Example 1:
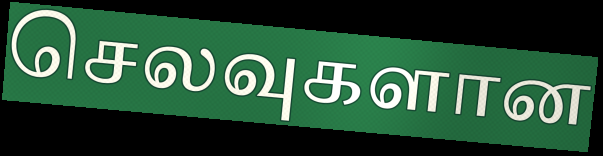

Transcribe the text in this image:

செலவுகளான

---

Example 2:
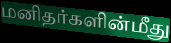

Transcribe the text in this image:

மனிதர்களின்மீது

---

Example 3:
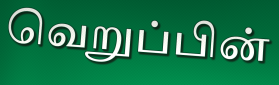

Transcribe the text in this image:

வெறுப்பின்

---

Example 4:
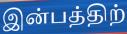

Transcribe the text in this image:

இன்பத்திற்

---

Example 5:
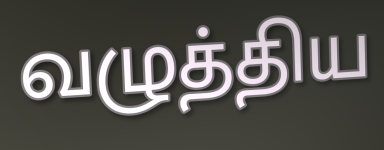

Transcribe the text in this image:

வழுத்திய